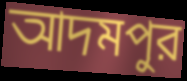
আদমপুর